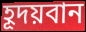
হূদয়বান